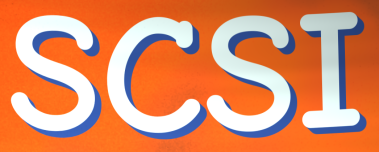
SCSI